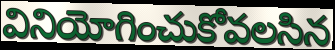
వినియోగించుకోవలసిన